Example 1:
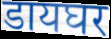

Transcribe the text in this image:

डायघर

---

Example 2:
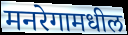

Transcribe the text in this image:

मनरेगामधील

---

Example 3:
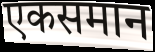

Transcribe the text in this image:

एकसमान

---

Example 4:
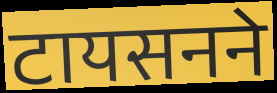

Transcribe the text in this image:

टायसनने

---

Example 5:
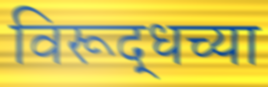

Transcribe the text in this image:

विरूद्धच्या